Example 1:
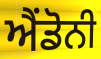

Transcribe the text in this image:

ਐਂਡੋਨੀ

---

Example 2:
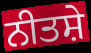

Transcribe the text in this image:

ਨੀਤਸ਼ੇ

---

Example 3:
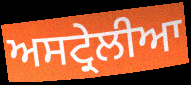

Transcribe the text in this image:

ਅਸਟ੍ਰੇਲੀਆ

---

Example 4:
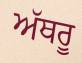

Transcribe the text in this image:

ਅੱਥਰੂ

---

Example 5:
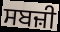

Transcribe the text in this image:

ਸਬਜ਼ੀ